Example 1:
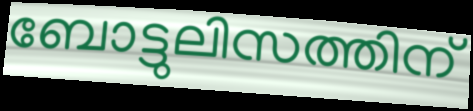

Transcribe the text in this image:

ബോട്ടുലിസത്തിന്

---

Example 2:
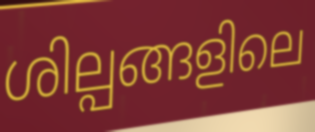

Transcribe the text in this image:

ശില്പങ്ങളിലെ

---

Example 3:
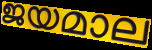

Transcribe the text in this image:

ജയമാല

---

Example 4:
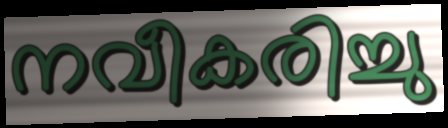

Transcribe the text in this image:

നവീകരിച്ചു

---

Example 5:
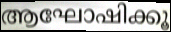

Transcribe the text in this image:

ആഘോഷിക്കൂ